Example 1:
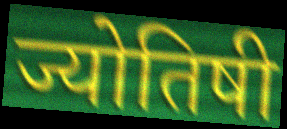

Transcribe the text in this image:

ज्योतिषी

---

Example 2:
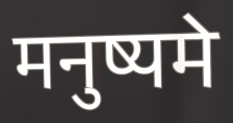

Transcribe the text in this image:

मनुष्यमे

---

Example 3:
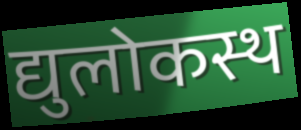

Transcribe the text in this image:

द्युलोकस्थ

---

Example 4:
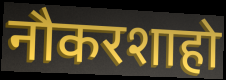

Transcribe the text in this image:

नौकरशाहो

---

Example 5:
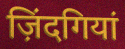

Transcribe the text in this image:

ज़िंदगियां